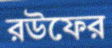
রউফের